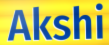
Akshi